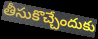
తీసుకొచ్చేందుకు